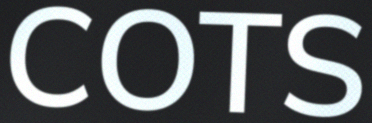
COTS